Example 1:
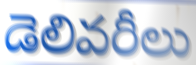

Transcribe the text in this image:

డెలివరీలు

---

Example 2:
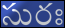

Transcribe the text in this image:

సురః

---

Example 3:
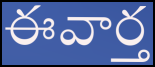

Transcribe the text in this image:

ఈవార్త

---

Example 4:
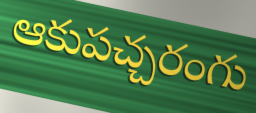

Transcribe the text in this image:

ఆకుపచ్చరంగు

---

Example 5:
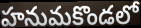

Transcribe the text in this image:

హనుమకొండలో